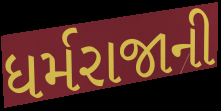
ધર્મરાજાની